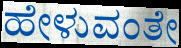
ಹೇಳುವಂತೇ